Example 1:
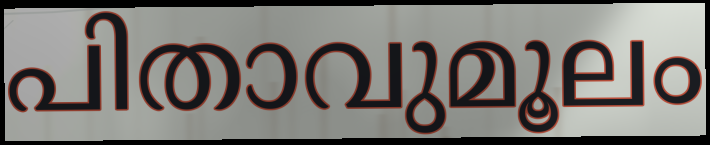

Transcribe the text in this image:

പിതാവുമൂലം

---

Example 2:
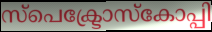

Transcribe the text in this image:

സ്പെക്ട്രോസ്കോപ്പി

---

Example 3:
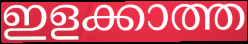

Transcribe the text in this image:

ഇളക്കാത്ത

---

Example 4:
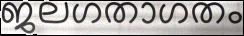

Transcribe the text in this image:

ജലഗതാഗതം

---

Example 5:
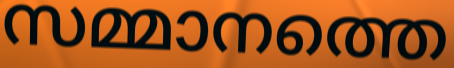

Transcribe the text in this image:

സമ്മാനത്തെ